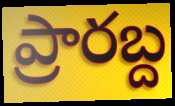
ప్రారబ్ద